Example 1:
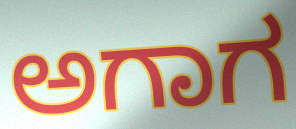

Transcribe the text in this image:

ಅಗಾಗ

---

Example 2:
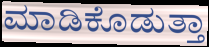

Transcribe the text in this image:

ಮಾಡಿಕೊಡುತ್ತಾ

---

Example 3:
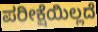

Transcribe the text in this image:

ಪರೀಕ್ಷೆಯಿಲ್ಲದೆ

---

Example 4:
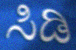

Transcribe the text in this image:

ಸಿಡಿ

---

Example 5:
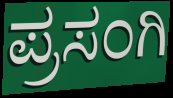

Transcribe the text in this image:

ಪ್ರಸಂಗಿ